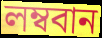
লম্ববান